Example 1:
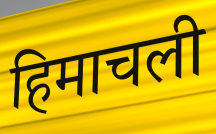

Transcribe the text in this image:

हिमाचली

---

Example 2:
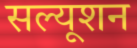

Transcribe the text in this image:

सल्यूशन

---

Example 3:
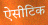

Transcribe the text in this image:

ऐसीटिक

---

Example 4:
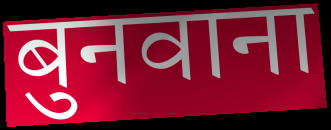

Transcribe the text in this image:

बुनवाना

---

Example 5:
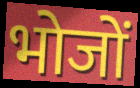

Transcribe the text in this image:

भोजों